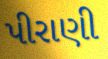
પીરાણી